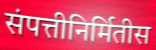
संपत्तीनिर्मितीस